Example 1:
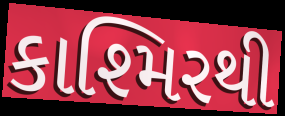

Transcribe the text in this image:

કાશ્મિરથી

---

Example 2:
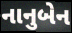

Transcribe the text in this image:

નાનુબેન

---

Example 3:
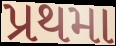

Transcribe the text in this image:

પ્રથમા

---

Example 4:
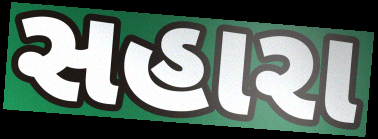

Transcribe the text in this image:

સહારા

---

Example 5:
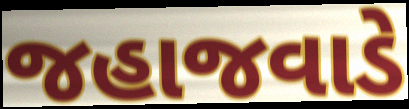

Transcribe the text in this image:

જહાજવાડે